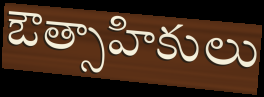
ఔత్సాహికులు